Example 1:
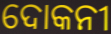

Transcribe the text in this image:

ଦୋକନୀ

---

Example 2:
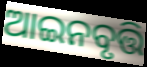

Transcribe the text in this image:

ଆଇନବୃତ୍ତି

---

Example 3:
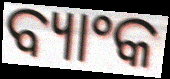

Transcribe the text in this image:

ବ୍ୟାଂକ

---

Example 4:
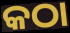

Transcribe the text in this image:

କଠା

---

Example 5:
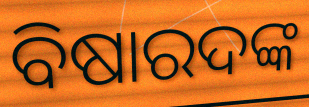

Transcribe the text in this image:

ବିଷାରଦଙ୍କ